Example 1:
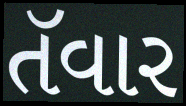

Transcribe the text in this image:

તૅવાર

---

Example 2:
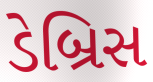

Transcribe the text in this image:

ડેબ્રિસ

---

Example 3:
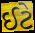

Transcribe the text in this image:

ઈટે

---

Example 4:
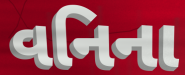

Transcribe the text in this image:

વનિના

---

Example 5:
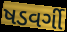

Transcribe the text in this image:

ષડવર્ગી